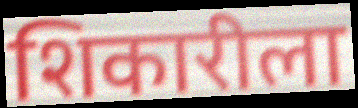
शिकारीला